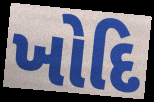
ખોદિ